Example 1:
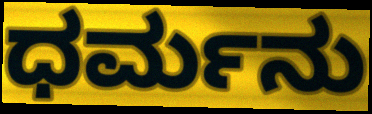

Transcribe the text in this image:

ಧರ್ಮನು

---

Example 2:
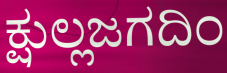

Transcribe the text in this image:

ಕ್ಷುಲ್ಲಜಗದಿಂ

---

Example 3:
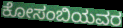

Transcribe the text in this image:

ಕೋಸಂಬಿಯವರ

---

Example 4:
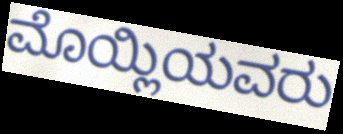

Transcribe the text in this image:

ಮೊಯ್ಲಿಯವರು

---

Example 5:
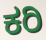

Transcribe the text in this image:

ಕರಿ